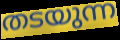
തടയുന്ന